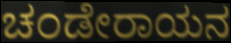
ಚಂಡೇರಾಯನ